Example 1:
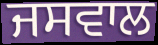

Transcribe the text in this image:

ਜਸਵਾਲ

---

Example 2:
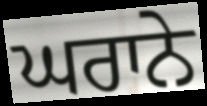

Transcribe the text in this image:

ਘਰਾਨੇ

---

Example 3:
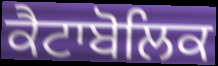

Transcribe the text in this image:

ਕੈਟਾਬੋਲਿਕ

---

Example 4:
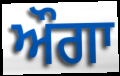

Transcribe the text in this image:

ਔਗਾ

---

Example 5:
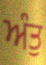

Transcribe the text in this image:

ਅੰਤੁ